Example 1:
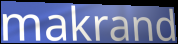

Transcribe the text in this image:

makrand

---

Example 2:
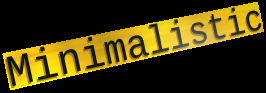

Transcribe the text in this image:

Minimalistic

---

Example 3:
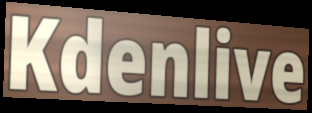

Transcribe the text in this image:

Kdenlive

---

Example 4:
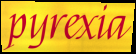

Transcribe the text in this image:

pyrexia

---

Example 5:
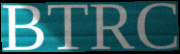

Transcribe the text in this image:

BTRC